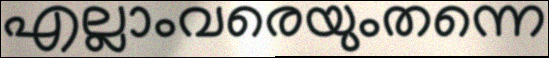
എല്ലാംവരെയുംതന്നെ